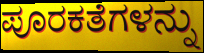
ಪೂರಕತೆಗಳನ್ನು